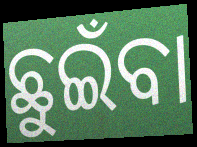
ଛୁଇଁବା